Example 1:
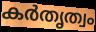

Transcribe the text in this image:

കർതൃത്വം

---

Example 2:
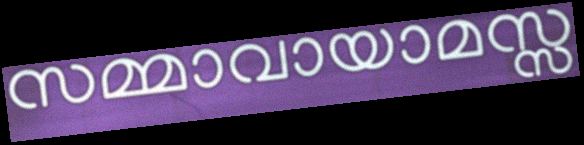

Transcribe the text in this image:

സമ്മാവായാമസ്സ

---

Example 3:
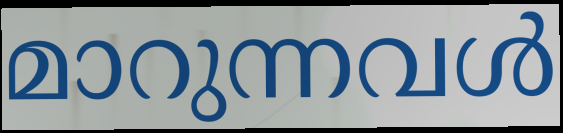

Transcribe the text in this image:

മാറുന്നവൾ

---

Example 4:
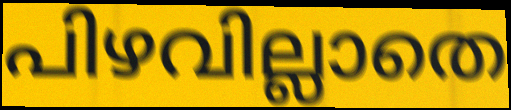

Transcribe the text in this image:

പിഴവില്ലാതെ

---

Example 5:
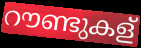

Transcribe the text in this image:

റൗണ്ടുകള്